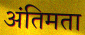
अंतिमता